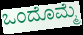
ಒಂದೊಮ್ಮೆ